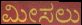
ಮೀಸಲು